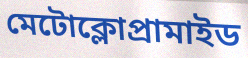
মেটোক্লোপ্রামাইড